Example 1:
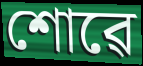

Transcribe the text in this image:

শোৱে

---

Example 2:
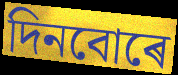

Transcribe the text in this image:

দিনবোৰে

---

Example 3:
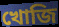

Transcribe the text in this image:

খোজি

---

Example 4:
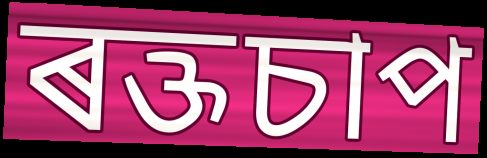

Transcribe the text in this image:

ৰক্তচাপ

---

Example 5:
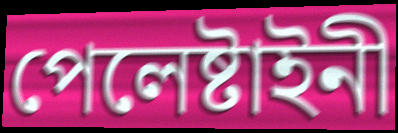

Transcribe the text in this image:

পেলেষ্টাইনী